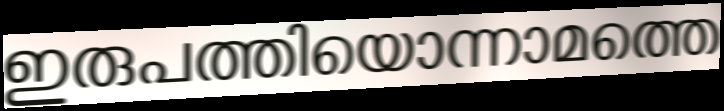
ഇരുപത്തിയൊന്നാമത്തെ